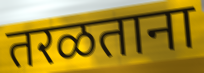
तरळताना